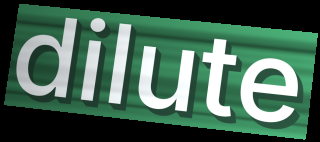
dilute